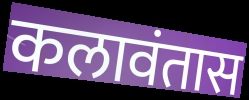
कलावंतास